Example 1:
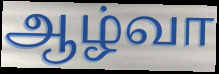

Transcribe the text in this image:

ஆழ்வா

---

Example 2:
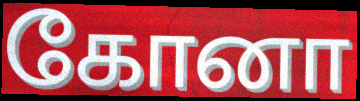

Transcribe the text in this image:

கோனா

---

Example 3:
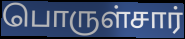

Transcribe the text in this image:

பொருள்சார்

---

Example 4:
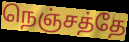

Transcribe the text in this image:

நெஞ்சத்தே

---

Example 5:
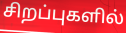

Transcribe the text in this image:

சிறப்புகளில்